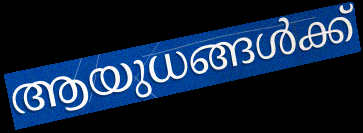
ആയുധങ്ങൾക്ക്